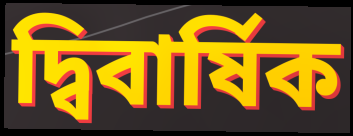
দ্বিবার্ষিক